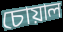
চোয়াল